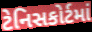
ટેનિસકોર્ટમાં